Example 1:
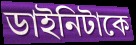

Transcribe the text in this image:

ডাইনিটাকে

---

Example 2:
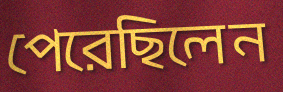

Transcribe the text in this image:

পেরেছিলেন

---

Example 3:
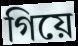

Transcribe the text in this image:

গিয়ে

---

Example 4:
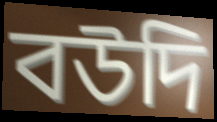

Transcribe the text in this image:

বউদি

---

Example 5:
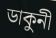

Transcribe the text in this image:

ডাকুনী